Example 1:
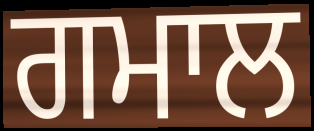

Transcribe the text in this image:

ਗਮਾਲ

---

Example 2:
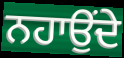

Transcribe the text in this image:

ਨਹਾਉਂਦੇ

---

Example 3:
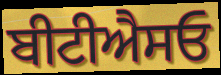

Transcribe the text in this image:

ਬੀਟੀਐਸਓ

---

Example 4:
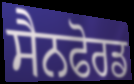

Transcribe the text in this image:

ਸੈਨਫੋਰਡ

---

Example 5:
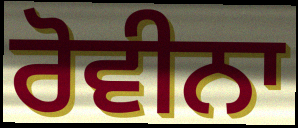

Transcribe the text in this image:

ਰੋਵੀਨਾ